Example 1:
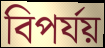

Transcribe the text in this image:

বিপৰ্যয়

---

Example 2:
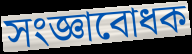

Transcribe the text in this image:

সংজ্ঞাবোধক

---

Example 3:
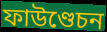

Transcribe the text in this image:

ফাউণ্ডেচন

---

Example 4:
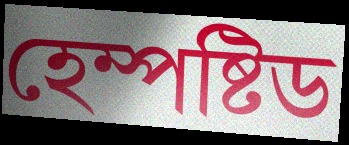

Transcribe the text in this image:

হেম্পষ্টিড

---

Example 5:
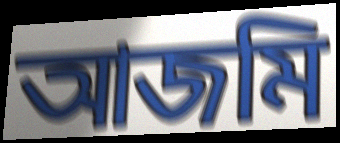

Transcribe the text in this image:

আজমি